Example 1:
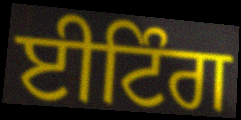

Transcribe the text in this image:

ਈਟਿੰਗ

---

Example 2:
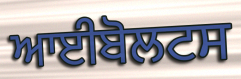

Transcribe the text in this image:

ਆਈਬੋਲਟਸ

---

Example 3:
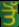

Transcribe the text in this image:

ਤੋੱ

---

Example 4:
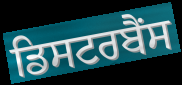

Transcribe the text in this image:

ਡਿਸਟਰਬੈਂਸ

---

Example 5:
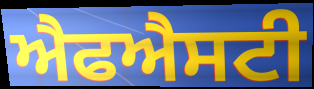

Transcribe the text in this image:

ਐਫਐਸਟੀ